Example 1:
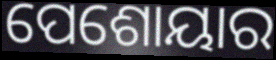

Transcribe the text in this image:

ପେଶୋୟାର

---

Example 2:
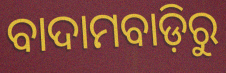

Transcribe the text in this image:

ବାଦାମବାଡ଼ିରୁ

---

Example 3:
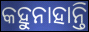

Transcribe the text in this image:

କହୁନାହାନ୍ତି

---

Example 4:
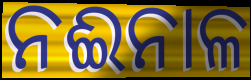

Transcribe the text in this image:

ନଈନାଳ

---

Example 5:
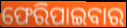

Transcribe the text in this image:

ଫେରିପାଇବାର